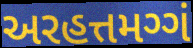
અરહત્તમગ્ગં